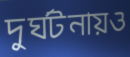
দুর্ঘটনায়ও